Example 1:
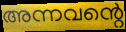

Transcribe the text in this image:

അന്നവന്റെ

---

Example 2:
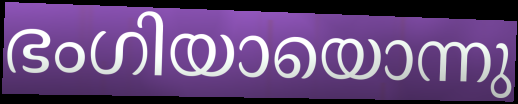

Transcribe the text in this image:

ഭംഗിയായൊന്നു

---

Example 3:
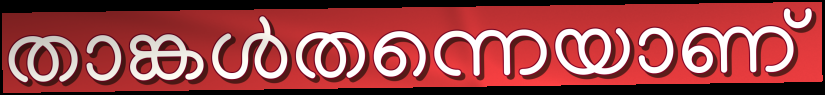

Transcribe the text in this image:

താങ്കൾതന്നെയാണ്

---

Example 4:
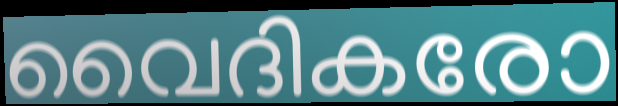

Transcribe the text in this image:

വൈദികരോ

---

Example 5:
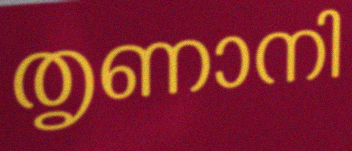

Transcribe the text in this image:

തൃണാനി